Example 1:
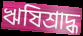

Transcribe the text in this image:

ঋষিশ্রাদ্ধ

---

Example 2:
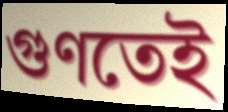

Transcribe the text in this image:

গুণতেই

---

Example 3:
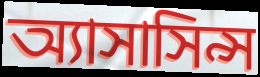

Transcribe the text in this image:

অ্যাসাসিন্স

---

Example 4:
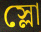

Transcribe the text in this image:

স্লো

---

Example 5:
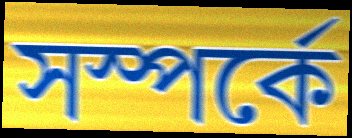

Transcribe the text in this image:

সস্পর্কে